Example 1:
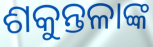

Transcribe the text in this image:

ଶକୁନ୍ତଳାଙ୍କ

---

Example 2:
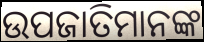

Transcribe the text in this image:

ଉପଜାତିମାନଙ୍କ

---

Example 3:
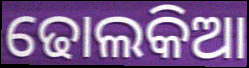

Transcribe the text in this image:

ଢୋଲକିଆ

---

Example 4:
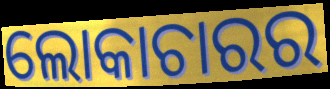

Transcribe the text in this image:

ଲୋକାଚାରର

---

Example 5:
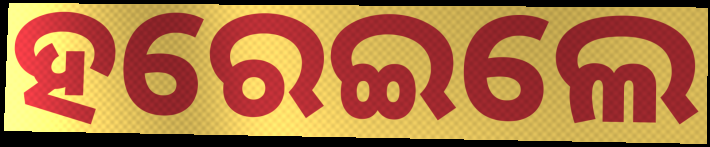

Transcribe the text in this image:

ହରେଇଲେ